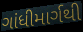
ગાંધીમાર્ગથી